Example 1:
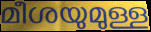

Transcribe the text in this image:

മീശയുമുള്ള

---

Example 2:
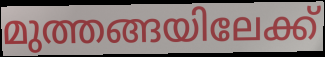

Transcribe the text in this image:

മുത്തങ്ങയിലേക്ക്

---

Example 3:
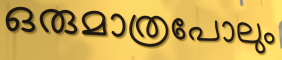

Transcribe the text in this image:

ഒരുമാത്രപോലും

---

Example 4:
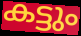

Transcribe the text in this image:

കട്ടും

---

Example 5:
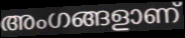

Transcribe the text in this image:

അംഗങ്ങളാണ്